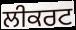
ਲੀਕਰਟ